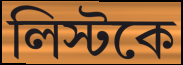
লিস্টকে